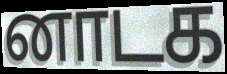
னாடக